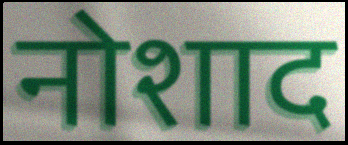
नोशाद